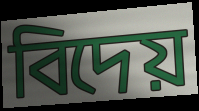
বিদেয়